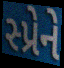
સ્પ્રેને